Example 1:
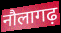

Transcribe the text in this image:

नौलागढ़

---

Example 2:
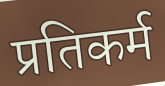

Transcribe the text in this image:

प्रतिकर्म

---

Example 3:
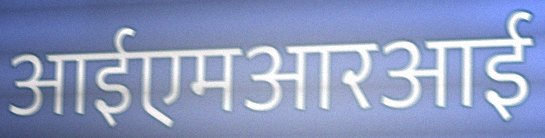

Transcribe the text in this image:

आईएमआरआई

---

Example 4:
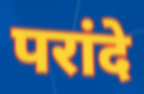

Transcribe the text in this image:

परांदे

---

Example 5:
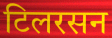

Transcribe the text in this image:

टिलरसन